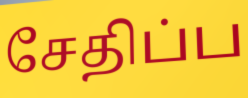
சேதிப்ப